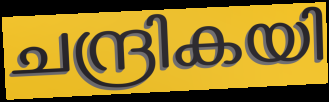
ചന്ദ്രികയി